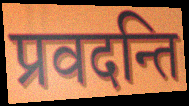
प्रवदन्ति